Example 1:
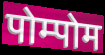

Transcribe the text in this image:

पोम्पोम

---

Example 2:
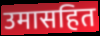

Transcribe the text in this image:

उमासहित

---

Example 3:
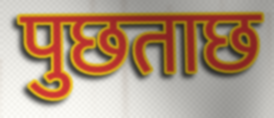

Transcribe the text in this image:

पुछताछ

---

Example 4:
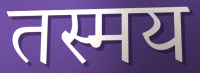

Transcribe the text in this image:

तस्मय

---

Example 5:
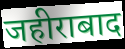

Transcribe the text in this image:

जहीराबाद